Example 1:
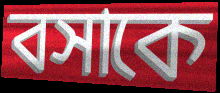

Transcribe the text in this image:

বসাকে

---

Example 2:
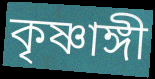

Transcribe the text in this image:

কৃষ্ণাঙ্গী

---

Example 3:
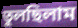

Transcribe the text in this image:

তুলছিলাম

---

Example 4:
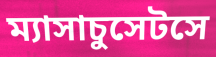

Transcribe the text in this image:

ম্যাসাচুসেটসে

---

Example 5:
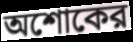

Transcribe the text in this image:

অশোকের